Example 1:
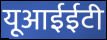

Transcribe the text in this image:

यूआईईटी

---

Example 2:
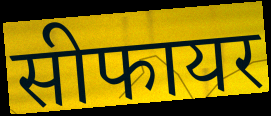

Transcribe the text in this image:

सीफायर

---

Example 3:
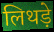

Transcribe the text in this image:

लिथड़े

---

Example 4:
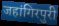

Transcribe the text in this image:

जहांगिरपुरी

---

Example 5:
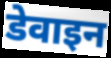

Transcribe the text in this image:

डेवाइन